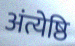
अंत्येष्ठि